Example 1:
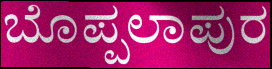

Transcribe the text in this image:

ಬೊಪ್ಪಲಾಪುರ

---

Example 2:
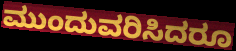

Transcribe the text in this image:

ಮುಂದುವರಿಸಿದರೂ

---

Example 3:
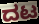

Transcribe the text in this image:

ದಟ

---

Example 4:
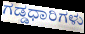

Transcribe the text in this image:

ಗಡ್ಡಧಾರಿಗಳು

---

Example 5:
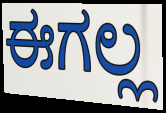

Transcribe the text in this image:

ಈಗಲ್ಲ